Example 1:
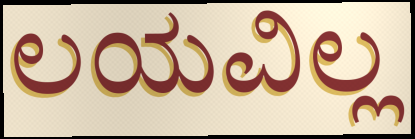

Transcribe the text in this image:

ಲಯವಿಲ್ಲ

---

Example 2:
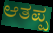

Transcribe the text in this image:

ಆತಪ್ಪ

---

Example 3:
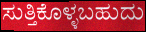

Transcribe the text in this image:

ಸುತ್ತಿಕೊಳ್ಳಬಹುದು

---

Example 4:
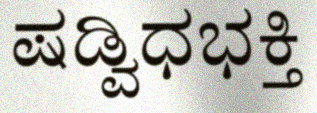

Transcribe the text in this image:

ಷಡ್ವಿಧಭಕ್ತಿ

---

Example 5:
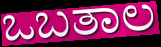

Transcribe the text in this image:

ಒಬತಾಲ